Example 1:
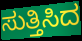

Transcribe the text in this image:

ಸುತ್ತಿಸಿದ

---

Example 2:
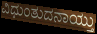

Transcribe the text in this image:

ವಿಧುಂತುದನಾಯ್ತು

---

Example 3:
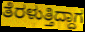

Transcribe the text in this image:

ತೆರಳುತ್ತಿದ್ದಾಗ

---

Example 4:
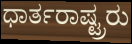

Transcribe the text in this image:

ಧಾರ್ತರಾಷ್ಟ್ರರು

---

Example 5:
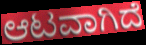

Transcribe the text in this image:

ಆಟವಾಗಿದೆ